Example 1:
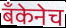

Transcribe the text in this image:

बँकेनेच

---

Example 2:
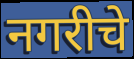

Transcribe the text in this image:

नगरीचे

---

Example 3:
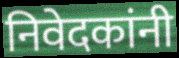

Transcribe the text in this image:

निवेदकांनी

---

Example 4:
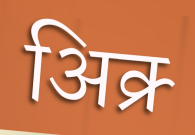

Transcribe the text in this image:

अिक्र्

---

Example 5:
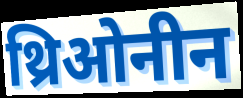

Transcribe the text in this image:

थ्रिओनीन